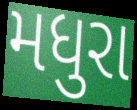
મધુરા